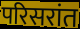
परिसरांत